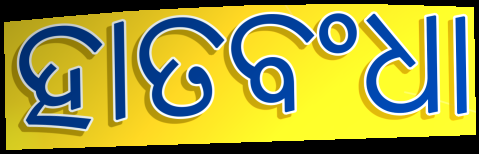
ହାତବଂଧା